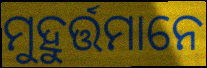
ମୁହୁର୍ତ୍ତମାନେ